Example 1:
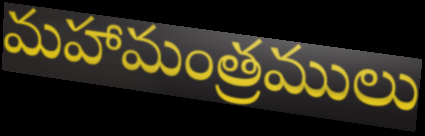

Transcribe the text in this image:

మహామంత్రములు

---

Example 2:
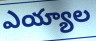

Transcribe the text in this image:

ఎయ్యాల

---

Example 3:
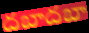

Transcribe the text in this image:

దబాదబా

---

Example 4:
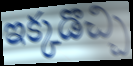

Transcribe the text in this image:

ఇక్కడొచ్చి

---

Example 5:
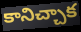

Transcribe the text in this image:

కానిచ్చాక